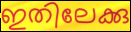
ഇതിലേക്കു